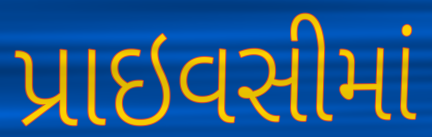
પ્રાઇવસીમાં